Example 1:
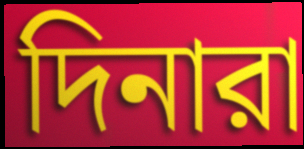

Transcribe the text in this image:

দিনারা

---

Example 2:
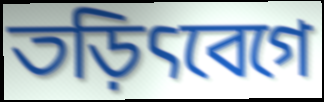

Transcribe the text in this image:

তড়িৎবেগে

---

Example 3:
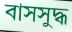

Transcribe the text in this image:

বাসসুদ্ধ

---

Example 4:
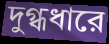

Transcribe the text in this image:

দুগ্ধধারে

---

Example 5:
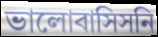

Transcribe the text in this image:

ভালোবাসিসনি